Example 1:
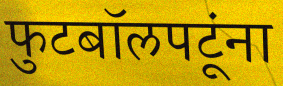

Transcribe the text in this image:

फुटबॉलपटूंना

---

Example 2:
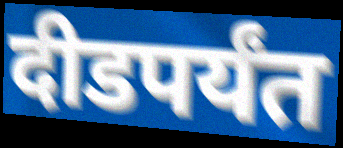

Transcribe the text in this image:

दीडपर्यंत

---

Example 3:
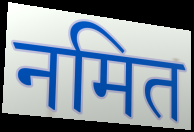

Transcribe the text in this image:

नमित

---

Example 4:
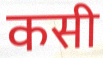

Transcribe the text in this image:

कसी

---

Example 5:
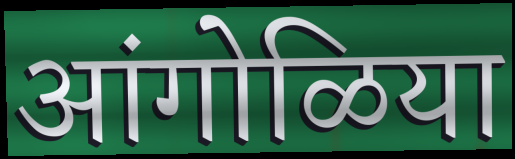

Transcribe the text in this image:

आंगोळिया